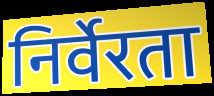
निर्वेरता